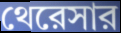
থেরেসার